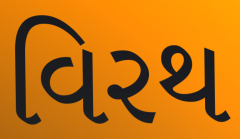
વિરથ